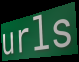
urls